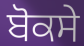
ਬੋਕਸੇ